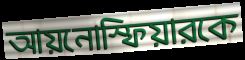
আয়নোস্ফিয়ারকে